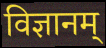
विज्ञानम्